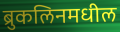
ब्रुकलिनमधील